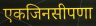
एकजिनसीपणा